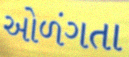
ઓળંગતા